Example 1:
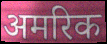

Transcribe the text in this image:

अमरिक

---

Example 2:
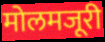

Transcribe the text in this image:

मोलमजूरी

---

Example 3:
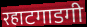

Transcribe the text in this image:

रहाटगाडगी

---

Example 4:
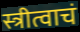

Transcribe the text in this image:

स्त्रीत्वाचं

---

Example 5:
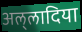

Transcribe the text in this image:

अल्लादिया